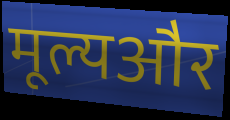
मूल्यऔर